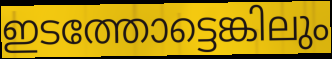
ഇടത്തോട്ടെങ്കിലും